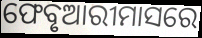
ଫେବୃଆରୀମାସରେ